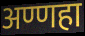
अण्णहा